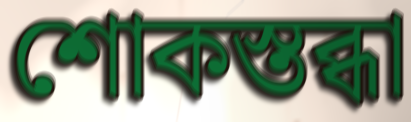
শোকস্তব্ধা